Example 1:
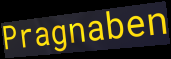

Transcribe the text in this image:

Pragnaben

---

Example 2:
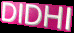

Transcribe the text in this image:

DIDHI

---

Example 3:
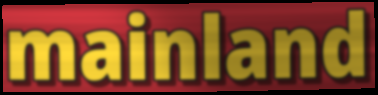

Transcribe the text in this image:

mainland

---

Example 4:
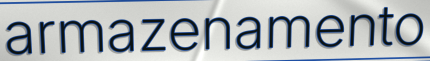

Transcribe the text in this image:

armazenamento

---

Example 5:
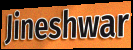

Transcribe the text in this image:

Jineshwar